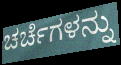
ಚರ್ಚೆಗಳನ್ನು